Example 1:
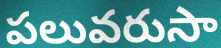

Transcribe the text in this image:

పలువరుసా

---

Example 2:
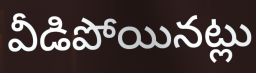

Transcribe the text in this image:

వీడిపోయినట్లు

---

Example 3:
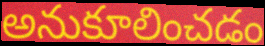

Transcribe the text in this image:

అనుకూలించడం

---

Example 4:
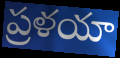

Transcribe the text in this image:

ప్రళయా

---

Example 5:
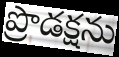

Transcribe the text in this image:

ప్రొడక్షను